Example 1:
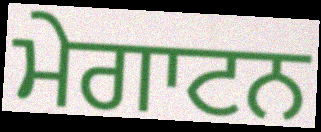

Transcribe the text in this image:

ਮੇਗਾਟਨ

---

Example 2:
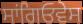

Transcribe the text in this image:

ਸਾਂਗਿਓਵੇਸ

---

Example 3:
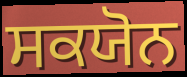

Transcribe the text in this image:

ਸਕਯੋਨ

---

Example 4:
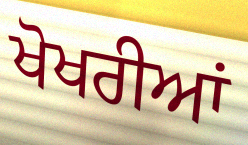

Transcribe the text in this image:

ਖੋਖਰੀਆਂ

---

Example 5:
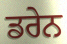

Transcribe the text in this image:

ਡਰੇਨ